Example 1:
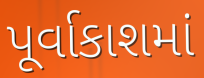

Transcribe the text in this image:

પૂર્વાકાશમાં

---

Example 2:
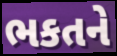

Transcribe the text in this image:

ભકતને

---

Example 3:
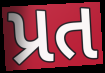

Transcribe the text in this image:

પ્રત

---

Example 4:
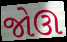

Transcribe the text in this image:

જોઊ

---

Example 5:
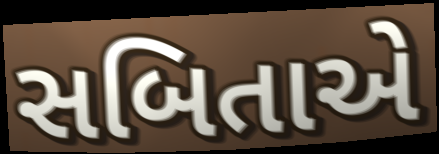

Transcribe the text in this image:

સબિતાએ